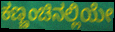
ಕಣ್ಣಂಚಿನಲ್ಲಿಯೇ